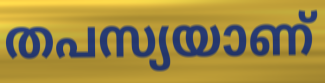
തപസ്യയാണ്